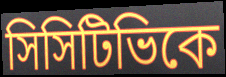
সিসিটিভিকে